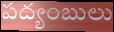
పద్యంబులు